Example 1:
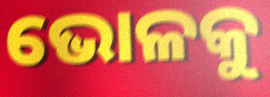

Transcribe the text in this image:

ଭୋଳକୁ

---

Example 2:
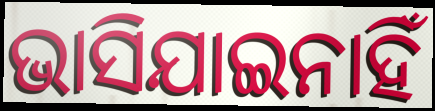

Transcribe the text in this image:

ଭାସିଯାଇନାହିଁ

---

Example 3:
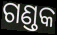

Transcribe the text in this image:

ଗଣ୍ଡକ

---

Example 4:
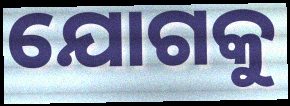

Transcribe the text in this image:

ଯୋଗକୁ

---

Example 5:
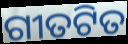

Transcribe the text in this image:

ଗୀତଟିତ